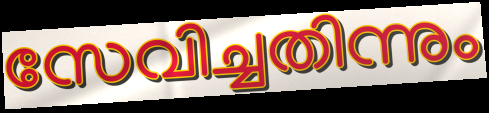
സേവിച്ചതിന്നും